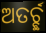
ଅତର୍ଚ୍ଛ